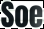
Soe